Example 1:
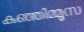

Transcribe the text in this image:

കുഞ്ഞിമ്മൂസ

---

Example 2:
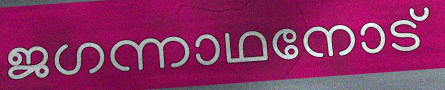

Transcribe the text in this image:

ജഗന്നാഥനോട്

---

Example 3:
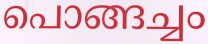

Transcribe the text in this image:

പൊങ്ങച്ചം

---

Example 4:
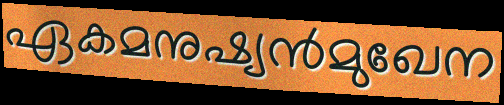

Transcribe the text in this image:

ഏകമനുഷ്യൻമുഖേന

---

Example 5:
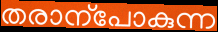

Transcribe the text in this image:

തരാന്പോകുന്ന